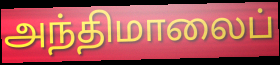
அந்திமாலைப்